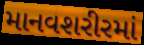
માનવશરીરમાં